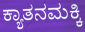
ಕ್ಯಾತನಮಕ್ಕಿ